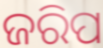
ଜରିପ